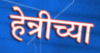
हेन्रीच्या